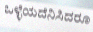
ಒಳ್ಳೆಯದೆನಿಸಿದರೂ